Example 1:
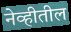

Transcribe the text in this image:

नेव्हीतील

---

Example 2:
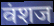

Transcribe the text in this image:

वंशज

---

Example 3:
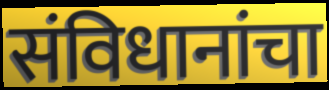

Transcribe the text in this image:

संविधानांचा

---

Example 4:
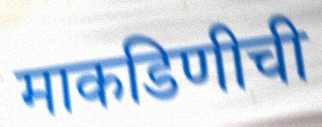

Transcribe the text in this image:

माकडिणीची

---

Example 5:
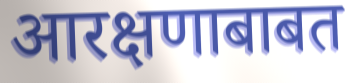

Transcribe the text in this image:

आरक्षणाबाबत